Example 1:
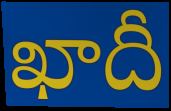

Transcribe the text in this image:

ఖాదీ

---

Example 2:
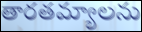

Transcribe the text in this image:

తారతమ్యాలను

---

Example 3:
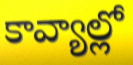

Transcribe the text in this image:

కావ్యాల్లో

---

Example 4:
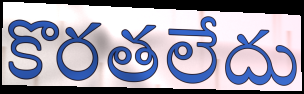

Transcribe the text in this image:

కొరతలేదు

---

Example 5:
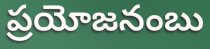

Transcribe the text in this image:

ప్రయోజనంబు